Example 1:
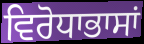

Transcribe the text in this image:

ਵਿਰੋਧਾਭਾਸਾਂ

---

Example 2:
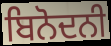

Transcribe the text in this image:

ਬਿਨੋਦਨੀ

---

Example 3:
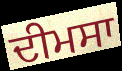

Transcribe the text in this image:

ਦੀਮਸਾ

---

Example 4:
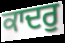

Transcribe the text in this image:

ਕਾਦਰੁ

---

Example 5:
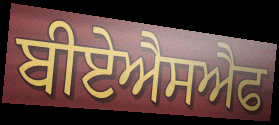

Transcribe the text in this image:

ਬੀਏਐਸਐਫ